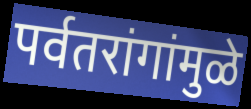
पर्वतरांगांमुळे